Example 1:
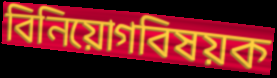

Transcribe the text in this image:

বিনিয়োগবিষয়ক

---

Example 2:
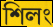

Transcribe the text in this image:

শিলং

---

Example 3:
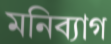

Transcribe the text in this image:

মনিব্যাগ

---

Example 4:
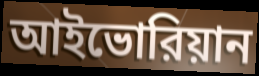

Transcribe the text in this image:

আইভোরিয়ান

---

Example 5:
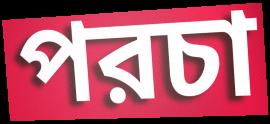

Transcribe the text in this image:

পরচা